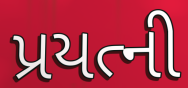
પ્રયત્ની